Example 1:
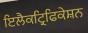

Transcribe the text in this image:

ਇਲੈਕਟ੍ਰਿਫਿਕੇਸ਼ਨ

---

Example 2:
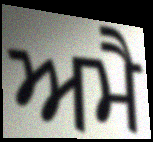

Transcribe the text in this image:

ਅਮੈ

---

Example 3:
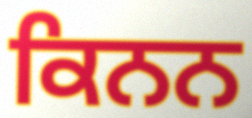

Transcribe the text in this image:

ਕਿਨਨ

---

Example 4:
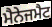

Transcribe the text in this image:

ਮੈਨੇਜਮੈਟ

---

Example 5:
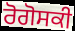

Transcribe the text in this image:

ਰੋਗੋਸਕੀ